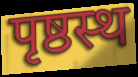
पृष्ठस्थ